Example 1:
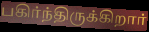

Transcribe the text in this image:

பகிர்ந்திருக்கிறார்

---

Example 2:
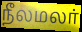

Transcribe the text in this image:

நீலமலர்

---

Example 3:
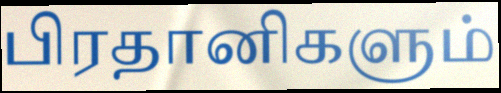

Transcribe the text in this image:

பிரதானிகளும்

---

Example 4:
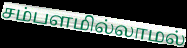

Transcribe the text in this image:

சம்பளமில்லாமல்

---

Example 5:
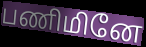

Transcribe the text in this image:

பணிமினே